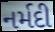
નર્મદી